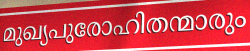
മുഖ്യപുരോഹിതന്മാരും